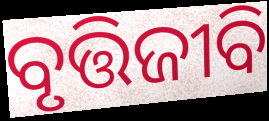
ବୃତ୍ତିଜୀବି